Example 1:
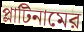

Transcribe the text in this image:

প্লাটিনামের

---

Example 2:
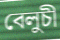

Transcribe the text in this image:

বেলুচী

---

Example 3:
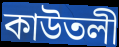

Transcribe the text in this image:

কাউতলী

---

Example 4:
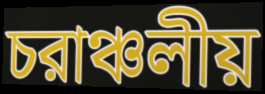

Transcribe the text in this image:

চরাঞ্চলীয়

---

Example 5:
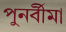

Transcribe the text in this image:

পুনর্বীমা